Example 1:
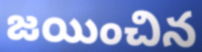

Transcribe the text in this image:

జయించిన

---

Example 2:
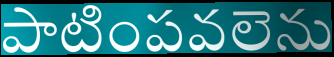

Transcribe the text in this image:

పాటింపవలెను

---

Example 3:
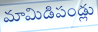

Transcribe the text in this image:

మామిడిపండ్లు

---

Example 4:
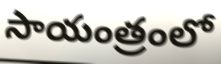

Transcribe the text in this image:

సాయంత్రంలో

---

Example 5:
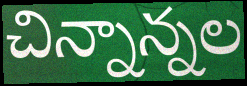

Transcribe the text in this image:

చిన్నాన్నల